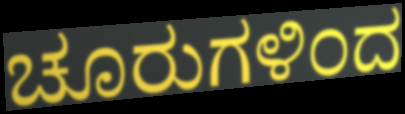
ಚೂರುಗಳಿಂದ